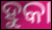
ହୁକା